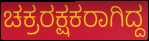
ಚಕ್ರರಕ್ಷಕರಾಗಿದ್ದ